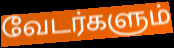
வேடர்களும்